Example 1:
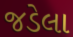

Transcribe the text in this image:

જડેલા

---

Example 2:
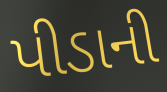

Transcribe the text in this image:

પીડાની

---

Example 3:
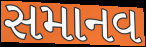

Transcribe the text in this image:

સમાનવ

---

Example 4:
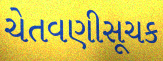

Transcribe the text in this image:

ચેતવણીસૂચક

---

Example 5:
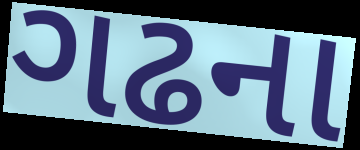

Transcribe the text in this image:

ગઢના